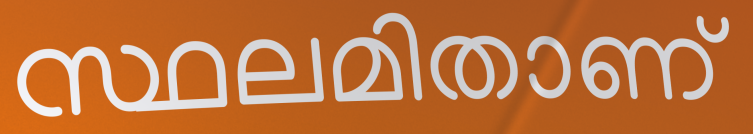
സ്ഥലമിതാണ്